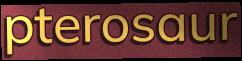
pterosaur